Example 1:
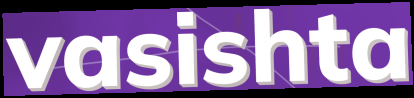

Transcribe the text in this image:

vasishta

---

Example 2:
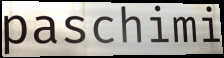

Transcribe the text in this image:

paschimi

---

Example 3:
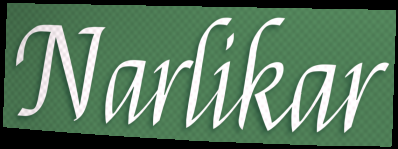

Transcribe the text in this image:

Narlikar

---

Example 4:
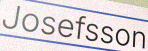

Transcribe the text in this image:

Josefsson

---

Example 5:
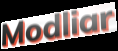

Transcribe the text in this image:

Modliar